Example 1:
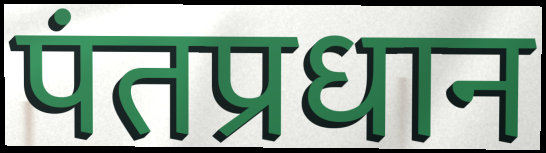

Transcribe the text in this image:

पंतप्रधान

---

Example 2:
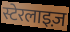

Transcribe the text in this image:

स्टेरलाइज़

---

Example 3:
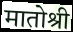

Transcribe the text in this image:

मातोश्री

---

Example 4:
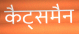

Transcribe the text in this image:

कैट्समैन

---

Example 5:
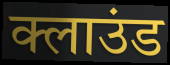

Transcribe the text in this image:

क्लाउंड